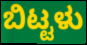
ಬಿಟ್ಟಳು